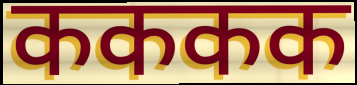
कककक